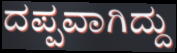
ದಪ್ಪವಾಗಿದ್ದು